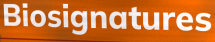
Biosignatures